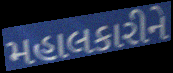
મહાલકારીને